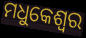
ମଧୁକେଶ୍ୱର